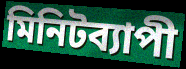
মিনিটব্যাপী